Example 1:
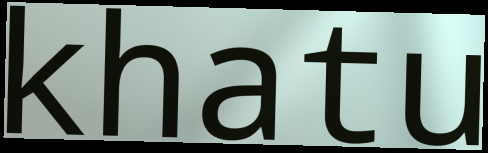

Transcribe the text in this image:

khatu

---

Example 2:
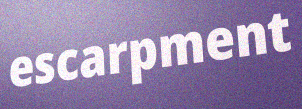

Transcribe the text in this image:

escarpment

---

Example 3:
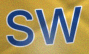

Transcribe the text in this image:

SW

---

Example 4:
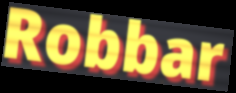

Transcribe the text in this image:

Robbar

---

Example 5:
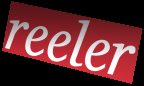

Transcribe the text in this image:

reeler